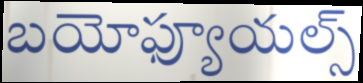
బయోఫ్యూయల్స్